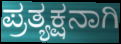
ಪ್ರತ್ಯಕ್ಷನಾಗಿ